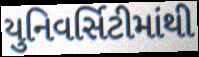
યુનિવર્સિટીમાંથી